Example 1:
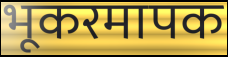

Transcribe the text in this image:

भूकरमापक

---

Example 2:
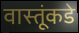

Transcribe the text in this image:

वास्तूंकडे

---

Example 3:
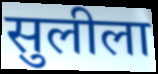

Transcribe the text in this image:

सुलीला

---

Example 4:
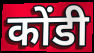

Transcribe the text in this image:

कोंडी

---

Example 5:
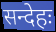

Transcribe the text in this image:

सन्देहः